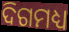
ଦିଗମଧ୍ୟ